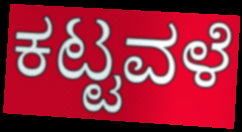
ಕಟ್ಟವಳೆ